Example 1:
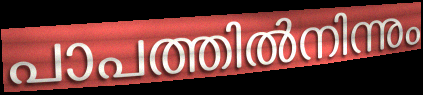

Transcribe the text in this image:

പാപത്തിൽനിന്നും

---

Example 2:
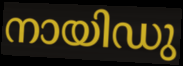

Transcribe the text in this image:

നായിഡു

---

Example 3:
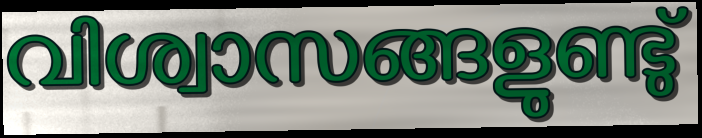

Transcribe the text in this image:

വിശ്വാസങ്ങളുണ്ടു്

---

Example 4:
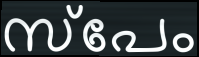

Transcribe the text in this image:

സ്പേം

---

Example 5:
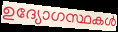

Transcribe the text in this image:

ഉദ്യോഗസ്ഥകൾ